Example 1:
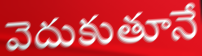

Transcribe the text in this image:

వెదుకుతూనే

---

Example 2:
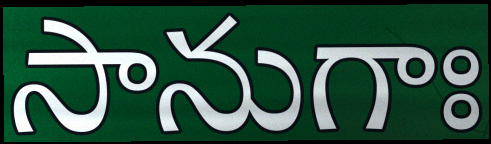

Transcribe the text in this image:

సానుగాః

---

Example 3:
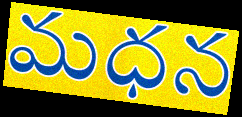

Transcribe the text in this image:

మధన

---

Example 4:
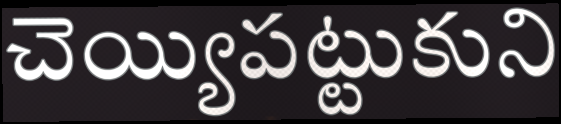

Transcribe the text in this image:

చెయ్యిపట్టుకుని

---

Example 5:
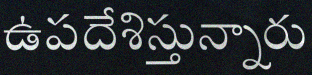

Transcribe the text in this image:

ఉపదేశిస్తున్నారు